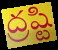
ద్రష్టి